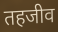
तहजीव